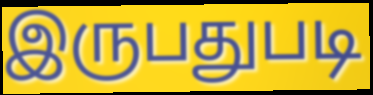
இருபதுபடி